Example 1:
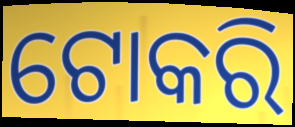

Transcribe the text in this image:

ଟୋକରି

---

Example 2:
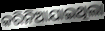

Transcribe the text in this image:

କରିନିଆଯାଇଥିଲା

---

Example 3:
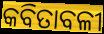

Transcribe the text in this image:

କବିତାବଳୀ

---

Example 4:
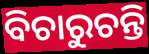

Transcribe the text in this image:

ବିଚାରୁଚନ୍ତି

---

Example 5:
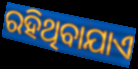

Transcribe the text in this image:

ରହିଥିବାଯାଏ